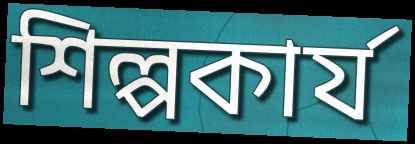
শিল্পকার্য